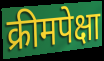
क्रीमपेक्षा